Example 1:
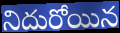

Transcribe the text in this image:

నిదురోయిన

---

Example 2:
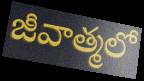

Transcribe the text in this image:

జీవాత్మలో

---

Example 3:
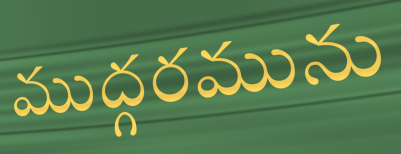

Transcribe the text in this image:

ముద్గరమును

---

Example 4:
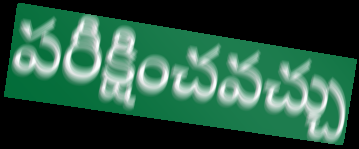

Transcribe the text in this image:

పరీక్షించవచ్చు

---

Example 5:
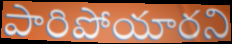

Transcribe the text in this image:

పారిపోయారని